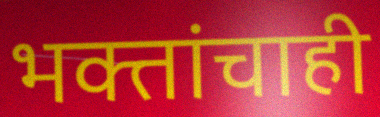
भक्तांचाही